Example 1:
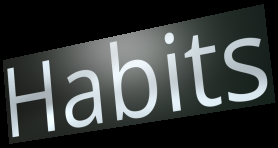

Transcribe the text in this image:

Habits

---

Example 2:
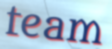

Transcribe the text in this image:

team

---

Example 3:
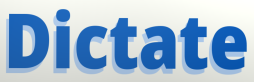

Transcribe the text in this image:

Dictate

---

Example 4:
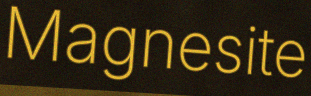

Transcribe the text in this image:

Magnesite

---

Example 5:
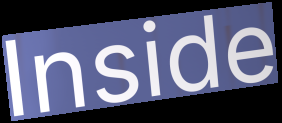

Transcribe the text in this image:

Inside